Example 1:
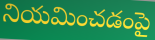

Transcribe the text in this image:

నియమించడంపై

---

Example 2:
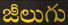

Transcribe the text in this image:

జీలుగు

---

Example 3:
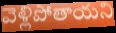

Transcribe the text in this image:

వెళ్లిపోతాయని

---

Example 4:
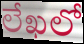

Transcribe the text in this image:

లేఖలో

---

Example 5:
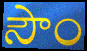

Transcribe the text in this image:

సౌం